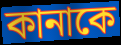
কানাকে